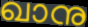
ഖാനു